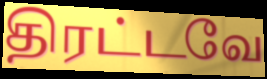
திரட்டவே